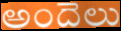
అందెలు